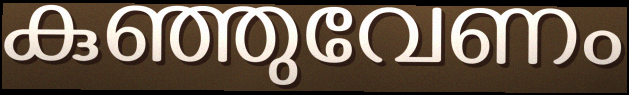
കുഞ്ഞുവേണം